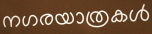
നഗരയാത്രകൾ